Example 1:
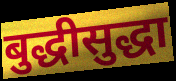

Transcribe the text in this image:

बुद्धीसुद्धा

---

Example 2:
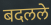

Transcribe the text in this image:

बदलले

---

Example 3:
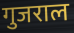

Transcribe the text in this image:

गुजराल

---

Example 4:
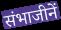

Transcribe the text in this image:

संभाजीनें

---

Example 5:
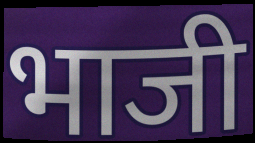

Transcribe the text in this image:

भाजी